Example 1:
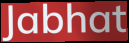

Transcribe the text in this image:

Jabhat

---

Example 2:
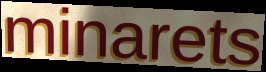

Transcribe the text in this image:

minarets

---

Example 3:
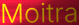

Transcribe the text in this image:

Moitra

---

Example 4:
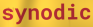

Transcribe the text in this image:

synodic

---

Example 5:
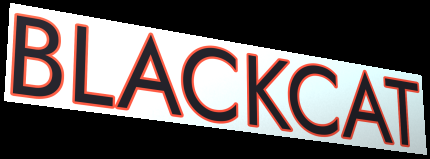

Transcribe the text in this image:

BLACKCAT